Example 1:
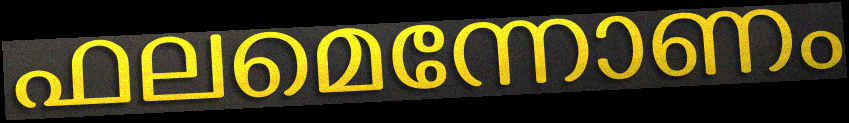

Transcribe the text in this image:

ഫലമെന്നോണം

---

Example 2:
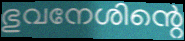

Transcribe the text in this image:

ഭുവനേശിന്റെ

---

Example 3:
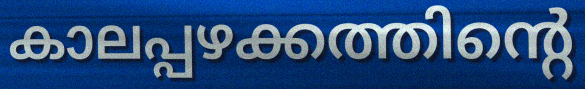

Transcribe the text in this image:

കാലപ്പഴക്കത്തിന്റെ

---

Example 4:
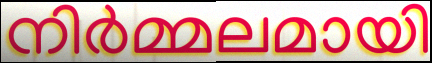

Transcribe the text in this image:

നിർമ്മലമായി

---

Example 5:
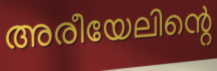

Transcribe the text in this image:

അരീയേലിന്റെ